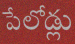
పేలోడ్లు